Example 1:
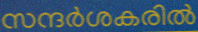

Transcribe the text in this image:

സന്ദർശകരിൽ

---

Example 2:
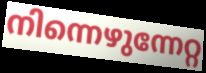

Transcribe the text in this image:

നിന്നെഴുന്നേറ്റ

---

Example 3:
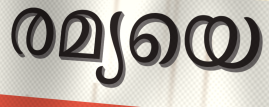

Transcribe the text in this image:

രമ്യയെ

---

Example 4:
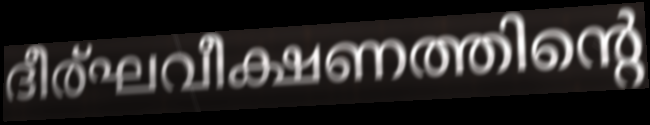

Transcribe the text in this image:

ദീര്ഘവീക്ഷണത്തിന്റെ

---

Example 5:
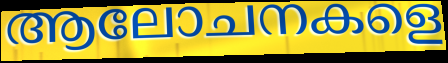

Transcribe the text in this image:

ആലോചനകളെ